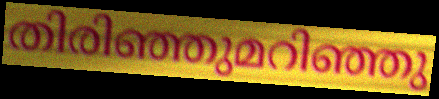
തിരിഞ്ഞുമറിഞ്ഞു